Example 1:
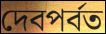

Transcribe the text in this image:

দেবপর্বত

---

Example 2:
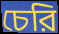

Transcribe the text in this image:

চেরি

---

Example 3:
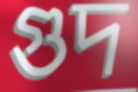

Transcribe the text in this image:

গুদ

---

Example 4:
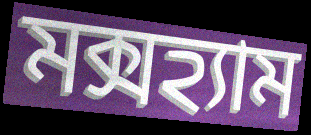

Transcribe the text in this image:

মক্সহ্যাম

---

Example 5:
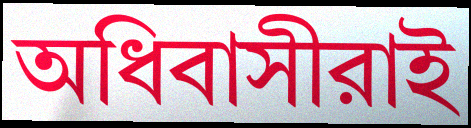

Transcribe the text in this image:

অধিবাসীরাই